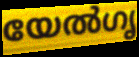
യേൽഗൃ